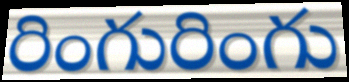
రింగురింగు